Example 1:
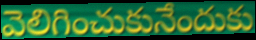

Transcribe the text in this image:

వెలిగించుకునేందుకు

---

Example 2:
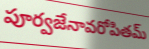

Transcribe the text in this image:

పూర్వజేనావరోపితమ్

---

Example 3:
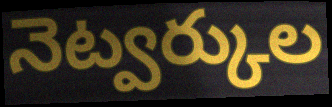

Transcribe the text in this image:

నెట్వర్కుల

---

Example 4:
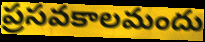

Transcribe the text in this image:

ప్రసవకాలమందు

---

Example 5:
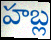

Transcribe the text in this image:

హబ్ల